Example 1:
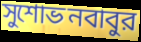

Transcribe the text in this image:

সুশোভনবাবুর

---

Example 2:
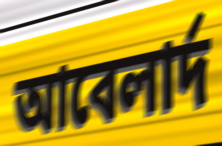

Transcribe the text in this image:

আবেলার্দ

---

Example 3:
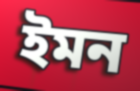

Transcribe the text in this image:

ইমন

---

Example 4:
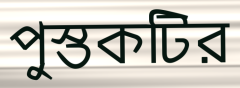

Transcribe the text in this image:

পুস্তকটির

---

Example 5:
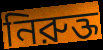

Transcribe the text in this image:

নিরুক্ত